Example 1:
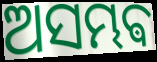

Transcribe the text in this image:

ଅସମ୍ଭଵ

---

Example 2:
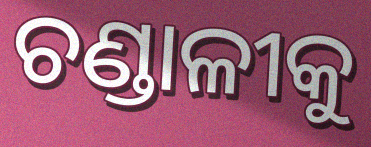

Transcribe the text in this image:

ଚଣ୍ଡାଳୀକୁ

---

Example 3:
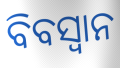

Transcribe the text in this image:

ବିବସ୍ୱାନ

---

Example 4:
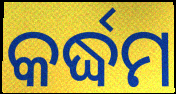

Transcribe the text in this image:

କର୍ଦ୍ଧମ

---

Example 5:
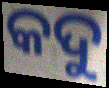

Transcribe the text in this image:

କଦୁ